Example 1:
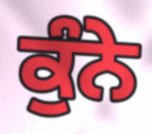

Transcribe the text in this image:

ਕੁੰਨੇ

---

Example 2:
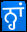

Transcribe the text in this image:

ਨ੍ਹਾਂ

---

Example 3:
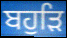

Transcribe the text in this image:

ਬਹੁੜਿ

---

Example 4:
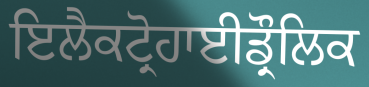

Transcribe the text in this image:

ਇਲੈਕਟ੍ਰੋਹਾਈਡ੍ਰੌਲਿਕ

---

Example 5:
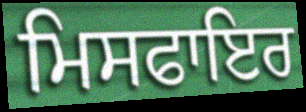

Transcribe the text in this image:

ਮਿਸਫਾਇਰ